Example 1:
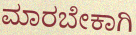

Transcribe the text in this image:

ಮಾರಬೇಕಾಗಿ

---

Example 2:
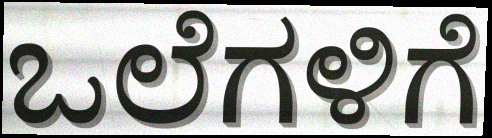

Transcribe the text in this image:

ಒಲೆಗಳಿಗೆ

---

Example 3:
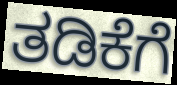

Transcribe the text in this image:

ತಡಿಕೆಗೆ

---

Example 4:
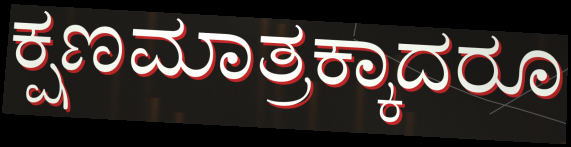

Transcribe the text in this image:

ಕ್ಷಣಮಾತ್ರಕ್ಕಾದರೂ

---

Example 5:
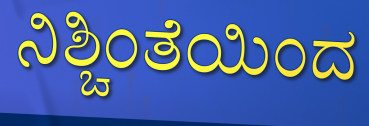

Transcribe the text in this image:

ನಿಶ್ಚಿಂತೆಯಿಂದ